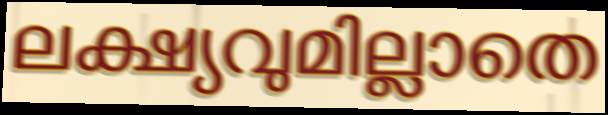
ലക്ഷ്യവുമില്ലാതെ